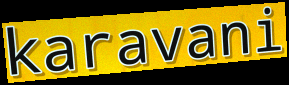
karavani